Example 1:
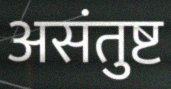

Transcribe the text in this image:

असंतुष्ट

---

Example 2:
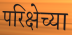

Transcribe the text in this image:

परिक्षेच्या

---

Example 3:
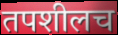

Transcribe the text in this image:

तपशीलच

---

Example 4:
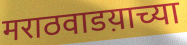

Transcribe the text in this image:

मराठवाडय़ाच्या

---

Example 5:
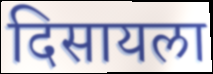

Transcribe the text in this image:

दिसायला